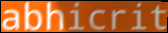
abhicrit